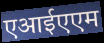
एआईएएम